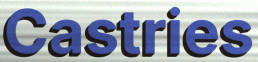
Castries